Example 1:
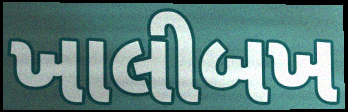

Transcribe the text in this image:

ખાલીબખ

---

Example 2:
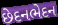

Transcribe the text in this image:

છેદનભેદન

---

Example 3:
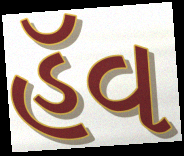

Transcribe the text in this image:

હૅવ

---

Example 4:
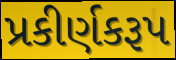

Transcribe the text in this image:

પ્રકીર્ણકરૂપ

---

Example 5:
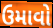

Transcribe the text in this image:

ઉમાવો